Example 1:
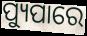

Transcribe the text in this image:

ପ୍ୟୁପାରେ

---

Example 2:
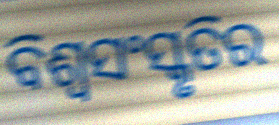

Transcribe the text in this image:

ବିଶ୍ୱସଂସ୍କୃତିର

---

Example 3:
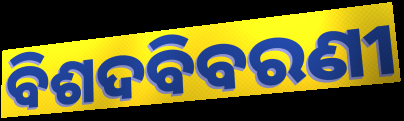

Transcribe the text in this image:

ବିଶଦବିବରଣୀ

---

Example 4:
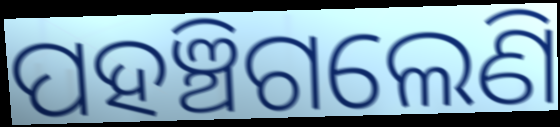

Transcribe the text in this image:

ପହଞ୍ଚିଗଲେଣି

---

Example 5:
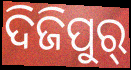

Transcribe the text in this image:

ଦିଜିପୁର୍